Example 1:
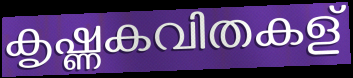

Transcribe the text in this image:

കൃഷ്ണകവിതകള്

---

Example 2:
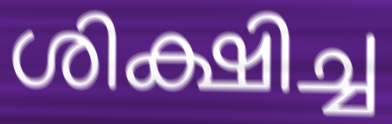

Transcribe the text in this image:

ശിക്ഷിച്ച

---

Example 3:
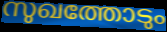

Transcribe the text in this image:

സുഖത്തോടും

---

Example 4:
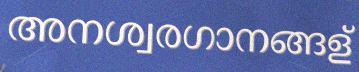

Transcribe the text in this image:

അനശ്വരഗാനങ്ങള്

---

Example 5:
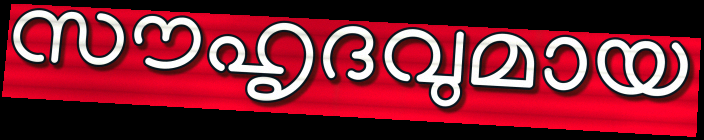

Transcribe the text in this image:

സൗഹൃദവുമായ